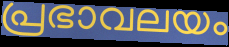
പ്രഭാവലയം